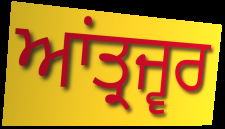
ਆਂਤ੍ਰਜ੍ਵਰ